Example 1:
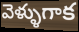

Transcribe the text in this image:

వెళ్ళుగాక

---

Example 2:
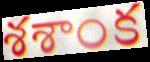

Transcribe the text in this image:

శశాంక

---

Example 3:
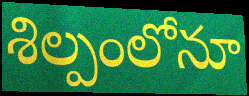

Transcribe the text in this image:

శిల్పంలోనూ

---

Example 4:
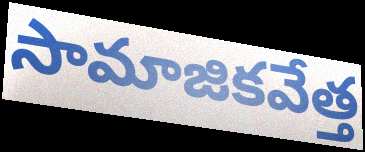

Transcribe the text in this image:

సామాజికవేత్త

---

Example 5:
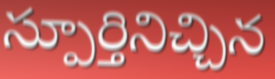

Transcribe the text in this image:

స్పూర్తినిచ్చిన